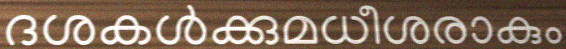
ദശകൾക്കുമധീശരാകും